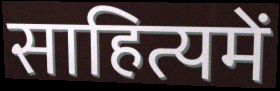
साहित्यमें